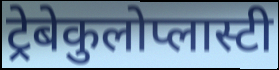
ट्रेबेकुलोप्लास्टी